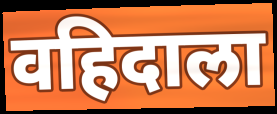
वहिदाला